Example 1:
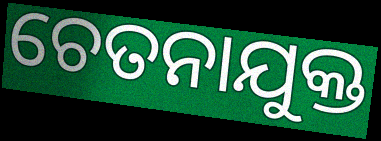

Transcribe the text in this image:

ଚେତନାଯୁକ୍ତ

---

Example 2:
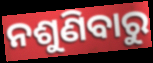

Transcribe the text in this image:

ନଶୁଣିବାରୁ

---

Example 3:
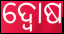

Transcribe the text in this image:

ଦ୍ୱୋଷ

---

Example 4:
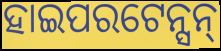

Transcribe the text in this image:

ହାଇପରଟେନ୍ସନ୍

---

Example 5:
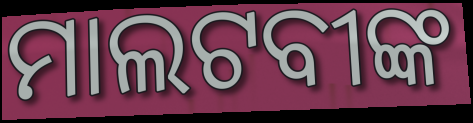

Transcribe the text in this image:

ମାଲଟବୀଙ୍କ